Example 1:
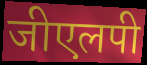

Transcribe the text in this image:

जीएलपी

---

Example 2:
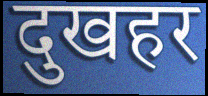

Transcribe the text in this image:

दुखहर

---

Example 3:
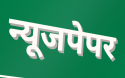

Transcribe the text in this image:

न्यूजपेपर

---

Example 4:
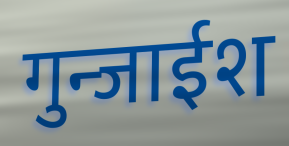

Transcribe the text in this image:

गुन्जाईश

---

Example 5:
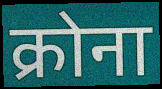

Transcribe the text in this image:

क्रोना